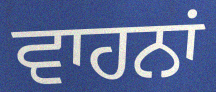
ਵਾਹਨਾਂ